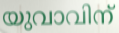
യുവാവിന്